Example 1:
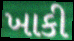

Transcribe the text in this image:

ખાકી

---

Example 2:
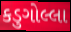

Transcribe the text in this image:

કડુગોલ્લા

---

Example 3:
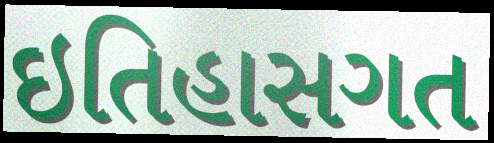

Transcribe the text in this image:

ઇતિહાસગત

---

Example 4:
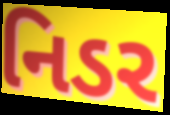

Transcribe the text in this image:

નિડર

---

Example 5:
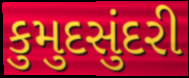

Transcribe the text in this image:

કુમુદસુંદરી